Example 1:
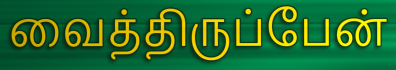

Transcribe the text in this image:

வைத்திருப்பேன்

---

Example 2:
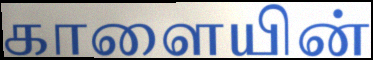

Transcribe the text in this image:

காளையின்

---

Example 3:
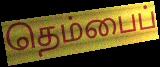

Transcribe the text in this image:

தெம்பைப்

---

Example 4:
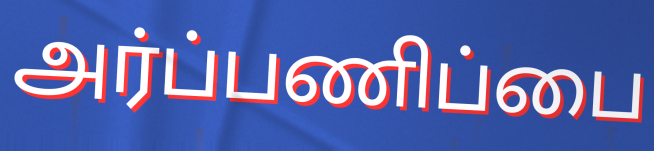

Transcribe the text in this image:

அர்ப்பணிப்பை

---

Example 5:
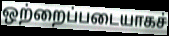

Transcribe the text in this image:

ஒற்றைப்படையாகச்